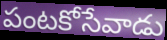
పంటకోసేవాడు